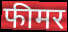
फीमर